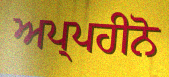
ਅਪ੍ਪਹੀਨੋ